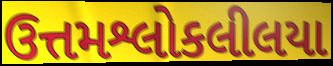
ઉત્તમશ્લોકલીલયા